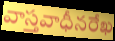
వాస్తవాధీనరేఖ